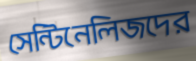
সেন্টিনেলিজদের